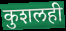
कुशलही